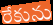
రేకును